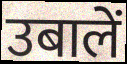
उबालें